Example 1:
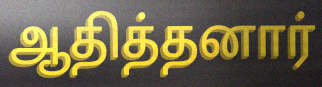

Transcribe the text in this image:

ஆதித்தனார்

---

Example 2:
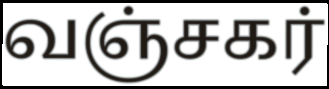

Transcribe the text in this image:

வஞ்சகர்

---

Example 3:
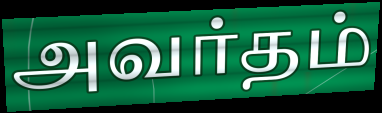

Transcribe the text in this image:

அவர்தம்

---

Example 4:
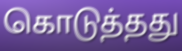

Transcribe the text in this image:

கொடுத்தது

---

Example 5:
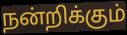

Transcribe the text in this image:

நன்றிக்கும்